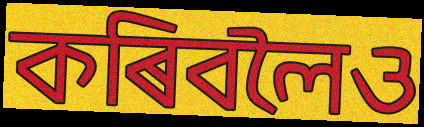
কৰিবলৈও